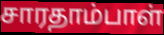
சாரதாம்பாள்